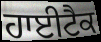
ਹਾਈਟੈਕ